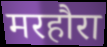
मरहौरा